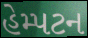
હેમ્પટન